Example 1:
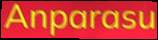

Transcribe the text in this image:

Anparasu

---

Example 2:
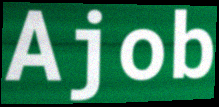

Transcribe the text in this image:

Ajob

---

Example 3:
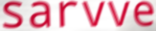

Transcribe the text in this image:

sarvve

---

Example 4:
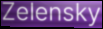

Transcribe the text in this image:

Zelensky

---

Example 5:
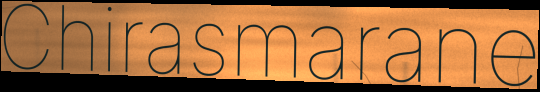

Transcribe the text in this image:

Chirasmarane